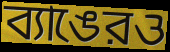
ব্যাঙেরও